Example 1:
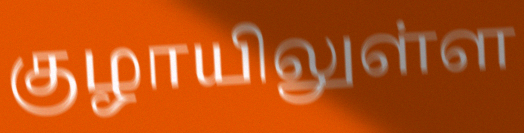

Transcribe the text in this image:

குழாயிலுள்ள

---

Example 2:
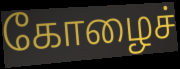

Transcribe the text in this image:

கோழைச்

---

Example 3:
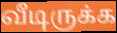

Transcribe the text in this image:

வீடிருக்க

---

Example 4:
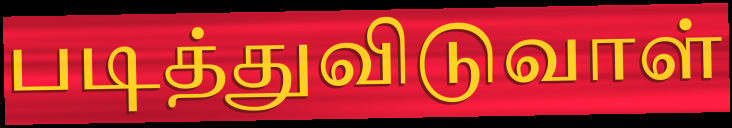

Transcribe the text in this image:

படித்துவிடுவாள்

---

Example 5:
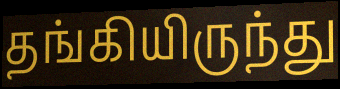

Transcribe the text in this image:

தங்கியிருந்து